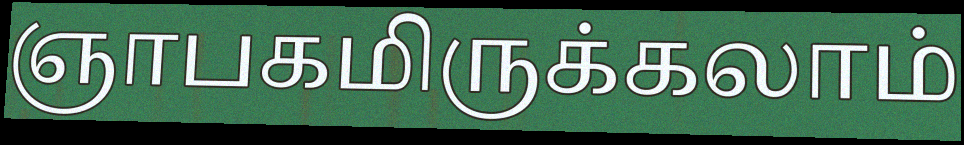
ஞாபகமிருக்கலாம்